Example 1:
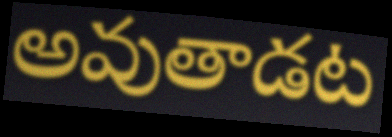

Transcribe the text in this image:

అవుతాడట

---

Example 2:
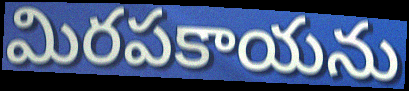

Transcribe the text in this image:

మిరపకాయను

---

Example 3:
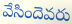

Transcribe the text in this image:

వేసిందెవరు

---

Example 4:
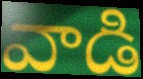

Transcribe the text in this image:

వాడి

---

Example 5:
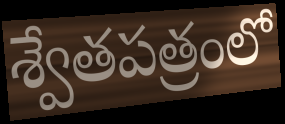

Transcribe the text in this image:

శ్వేతపత్రంలో